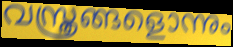
വസ്ത്രങ്ങളൊന്നും